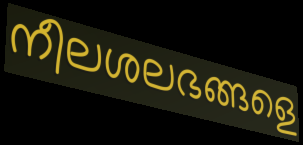
നീലശലഭങ്ങളെ